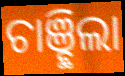
ଚାଞ୍ଛିଲା